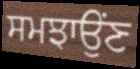
ਸਮਝਾਉਂਣ